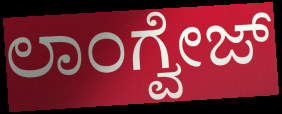
ಲಾಂಗ್ವೇಜ್